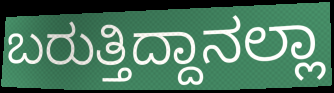
ಬರುತ್ತಿದ್ದಾನಲ್ಲಾ